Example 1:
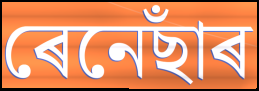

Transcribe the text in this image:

ৰেনেছাঁৰ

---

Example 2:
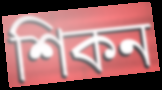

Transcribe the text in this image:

শিকন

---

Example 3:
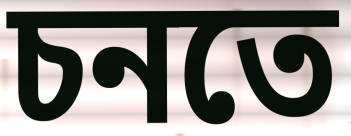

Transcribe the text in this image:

চনতে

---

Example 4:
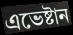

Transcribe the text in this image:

এভেষ্টান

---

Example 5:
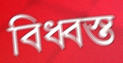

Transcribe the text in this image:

বিধ্বস্ত